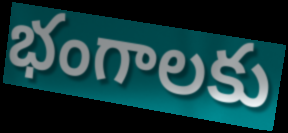
భంగాలకు